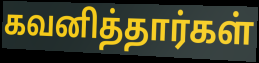
கவனித்தார்கள்